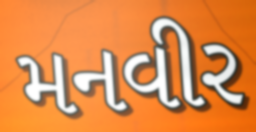
મનવીર